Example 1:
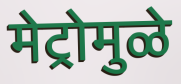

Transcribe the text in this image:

मेट्रोमुळे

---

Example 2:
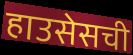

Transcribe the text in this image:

हाउसेसची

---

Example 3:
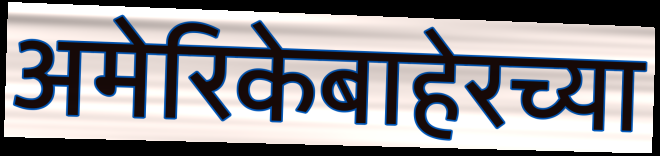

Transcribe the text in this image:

अमेरिकेबाहेरच्या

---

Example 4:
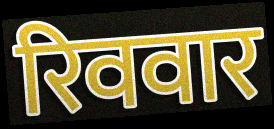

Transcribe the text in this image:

रिववार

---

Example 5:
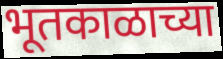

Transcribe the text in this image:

भूतकाळाच्या